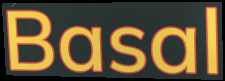
Basal